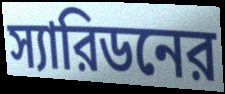
স্যারিডনের